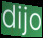
dijo